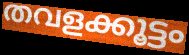
തവളക്കൂട്ടം